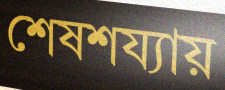
শেষশয্যায়